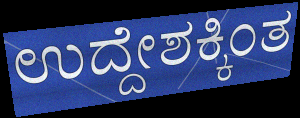
ಉದ್ದೇಶಕ್ಕಿಂತ